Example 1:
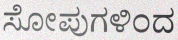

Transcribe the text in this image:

ಸೋಪುಗಳಿಂದ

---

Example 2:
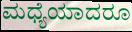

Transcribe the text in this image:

ಮಧ್ಯೆಯಾದರೂ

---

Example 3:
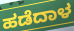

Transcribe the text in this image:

ಹಡೆದಾಳ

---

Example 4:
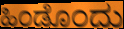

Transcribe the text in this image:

ಹಿಂಡೊಂದು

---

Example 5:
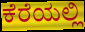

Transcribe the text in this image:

ಕೆರೆಯಲ್ಲಿ